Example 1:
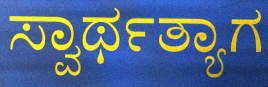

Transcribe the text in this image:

ಸ್ವಾರ್ಥತ್ಯಾಗ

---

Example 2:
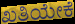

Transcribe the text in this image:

ಖತಿಯೇಕೆ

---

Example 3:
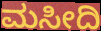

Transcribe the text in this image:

ಮಸೀದಿ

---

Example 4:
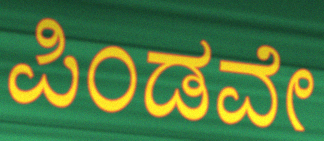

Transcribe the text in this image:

ಪಿಂಡವೇ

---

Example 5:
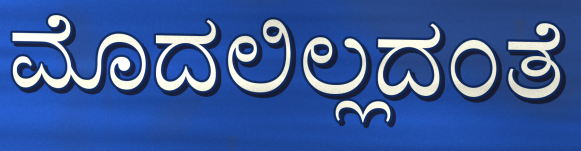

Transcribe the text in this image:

ಮೊದಲಿಲ್ಲದಂತೆ